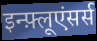
इन्फ़्लूएंसर्स